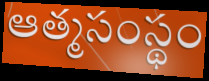
ఆత్మసంస్థం